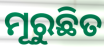
ମୂରୁଛିତ